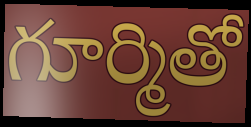
గూర్మితో